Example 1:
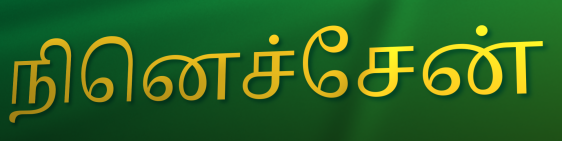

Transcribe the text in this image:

நினெச்சேன்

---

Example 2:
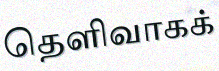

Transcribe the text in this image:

தெளிவாகக்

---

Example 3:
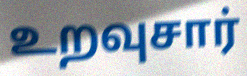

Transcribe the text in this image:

உறவுசார்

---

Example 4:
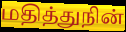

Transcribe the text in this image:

மதித்துநின்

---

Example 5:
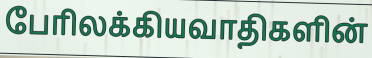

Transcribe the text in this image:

பேரிலக்கியவாதிகளின்